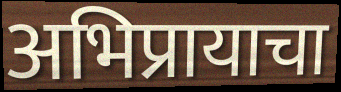
अभिप्रायाचा